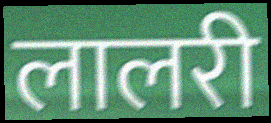
लालरी